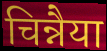
चिन्नैया